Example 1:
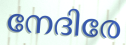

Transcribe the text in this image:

നേദിരേ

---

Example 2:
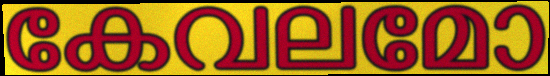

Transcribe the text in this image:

കേവലമോ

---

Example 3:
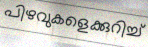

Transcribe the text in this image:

പിഴവുകളെക്കുറിച്ച്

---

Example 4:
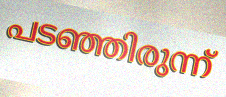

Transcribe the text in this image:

പടഞ്ഞിരുന്ന്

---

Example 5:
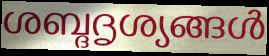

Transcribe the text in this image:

ശബ്ദദൃശ്യങ്ങൾ